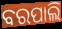
ବରପାଲି